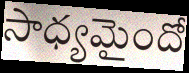
సాధ్యమైందో